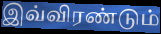
இவ்விரண்டும்